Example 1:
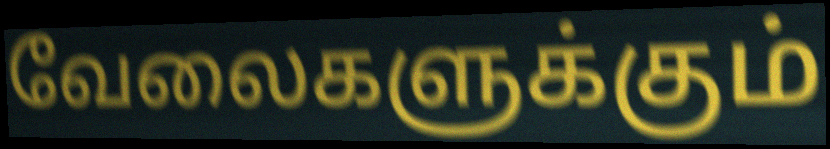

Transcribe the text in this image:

வேலைகளுக்கும்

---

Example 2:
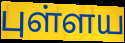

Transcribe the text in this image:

புள்ளய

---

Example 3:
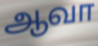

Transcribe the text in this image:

ஆவா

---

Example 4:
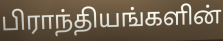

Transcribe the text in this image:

பிராந்தியங்களின்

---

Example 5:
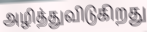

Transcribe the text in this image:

அழித்துவிடுகிறது